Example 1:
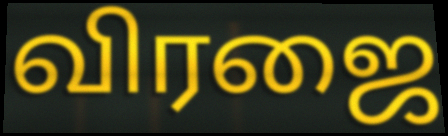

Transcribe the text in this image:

விரஜை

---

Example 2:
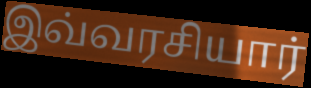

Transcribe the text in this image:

இவ்வரசியார்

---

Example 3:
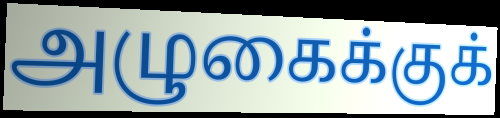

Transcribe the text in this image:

அழுகைக்குக்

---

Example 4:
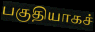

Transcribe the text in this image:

பகுதியாகச்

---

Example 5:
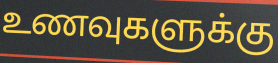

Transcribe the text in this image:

உணவுகளுக்கு